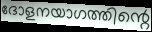
ദോളനയാഗത്തിന്റെ